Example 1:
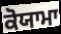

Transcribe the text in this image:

ਕੋਯਾਮਾ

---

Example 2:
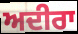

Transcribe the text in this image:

ਅਦੀਰਾ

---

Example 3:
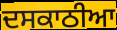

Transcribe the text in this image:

ਦਸਕਾਠੀਆ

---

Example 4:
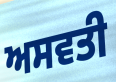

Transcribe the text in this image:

ਅਸਵਤੀ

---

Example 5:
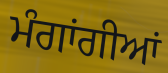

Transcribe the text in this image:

ਮੰਗਾਂਗੀਆਂ